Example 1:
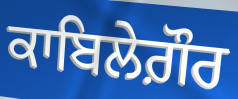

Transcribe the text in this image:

ਕਾਬਿਲੇਗ਼ੌਰ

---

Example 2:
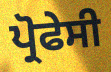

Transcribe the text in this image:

ਪ੍ਰੋਫੇਸੀ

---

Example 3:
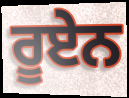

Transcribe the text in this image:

ਰੂਏਨ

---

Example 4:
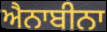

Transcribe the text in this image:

ਐਨਾਬੀਨਾ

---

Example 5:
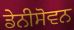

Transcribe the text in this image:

ਡੇਨੀਸੋਵਨ